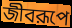
জীবরূপে